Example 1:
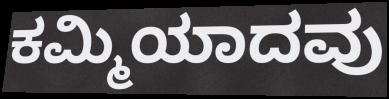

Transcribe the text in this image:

ಕಮ್ಮಿಯಾದವು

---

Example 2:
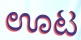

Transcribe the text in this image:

ಊಟ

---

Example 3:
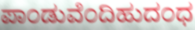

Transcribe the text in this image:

ಪಾಂಡುವೆಂದಿಹುದಂಧ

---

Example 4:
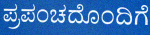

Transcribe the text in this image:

ಪ್ರಪಂಚದೊಂದಿಗೆ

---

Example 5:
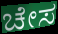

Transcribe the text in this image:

ಚೇಸ